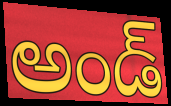
అండ్